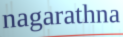
nagarathna